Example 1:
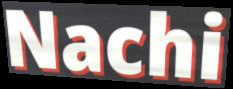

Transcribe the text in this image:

Nachi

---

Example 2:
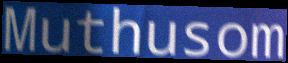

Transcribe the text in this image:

Muthusom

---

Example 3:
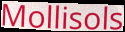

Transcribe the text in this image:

Mollisols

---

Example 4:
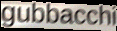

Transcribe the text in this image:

gubbacchi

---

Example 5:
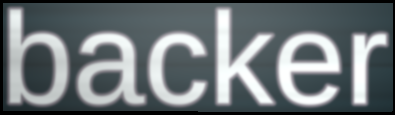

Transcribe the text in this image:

backer